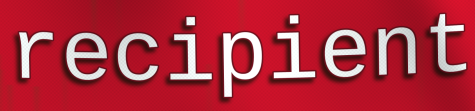
recipient